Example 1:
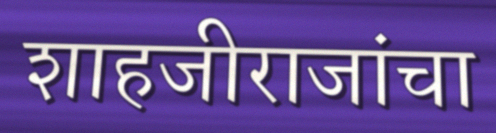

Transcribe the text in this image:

शाहजीराजांचा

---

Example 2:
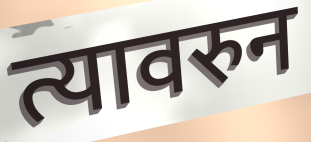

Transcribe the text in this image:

त्यावरुन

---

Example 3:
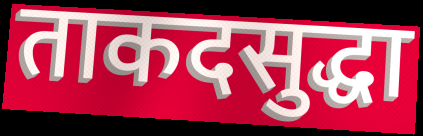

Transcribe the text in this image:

ताकदसुद्धा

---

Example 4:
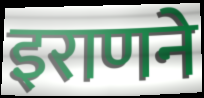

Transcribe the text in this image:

इराणने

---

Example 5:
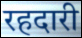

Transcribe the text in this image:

रहदारी